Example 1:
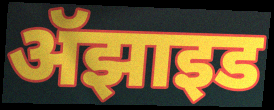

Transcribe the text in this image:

ॲझाइड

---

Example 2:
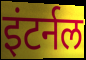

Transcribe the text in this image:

इंटर्नल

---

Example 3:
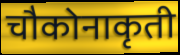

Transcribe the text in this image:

चौकोनाकृती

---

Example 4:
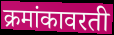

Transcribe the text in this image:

क्रमांकावरती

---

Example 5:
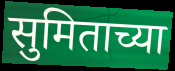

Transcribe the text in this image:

सुमिताच्या